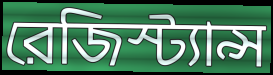
রেজিস্ট্যান্স